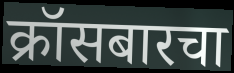
क्रॉसबारचा